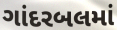
ગાંદરબલમાં